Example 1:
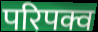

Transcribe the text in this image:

परिपक्व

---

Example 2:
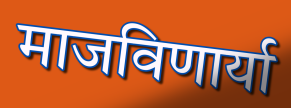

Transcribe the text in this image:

माजविणार्या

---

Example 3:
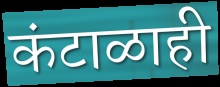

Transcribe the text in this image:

कंटाळाही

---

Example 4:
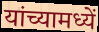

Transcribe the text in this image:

यांच्यामध्यें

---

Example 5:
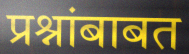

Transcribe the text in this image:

प्रश्नांबाबत